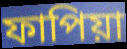
ফাপিয়া